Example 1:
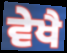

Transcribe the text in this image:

ਵੇਖੈ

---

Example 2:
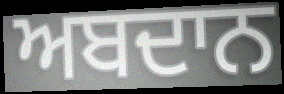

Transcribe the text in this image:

ਅਬਦਾਨ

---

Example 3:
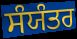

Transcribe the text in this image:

ਸੰਯੰਤਰ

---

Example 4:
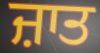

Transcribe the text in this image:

ਜ਼ਾਤ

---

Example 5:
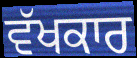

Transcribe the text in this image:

ਵੱਖਕਾਰ